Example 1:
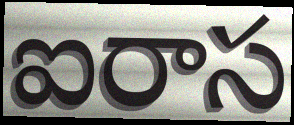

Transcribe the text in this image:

ఐరాస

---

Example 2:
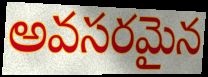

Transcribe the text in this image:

అవసరమైన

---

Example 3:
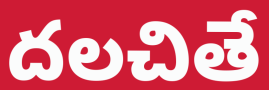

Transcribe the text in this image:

దలచితే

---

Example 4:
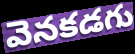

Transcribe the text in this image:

వెనకడగు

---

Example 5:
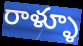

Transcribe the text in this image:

రాళ్ళూ